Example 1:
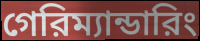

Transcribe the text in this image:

গেরিম্যান্ডারিং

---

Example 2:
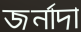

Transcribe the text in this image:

জর্নাদা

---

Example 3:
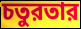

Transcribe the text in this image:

চতুরতার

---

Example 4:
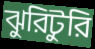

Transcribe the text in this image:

ঝুরিটুরি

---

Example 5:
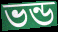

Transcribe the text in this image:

ভন্ড